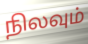
நிலவும்